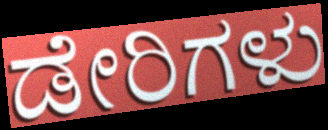
ಡೇರಿಗಳು